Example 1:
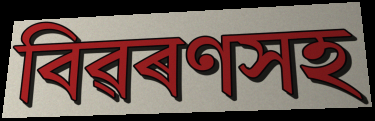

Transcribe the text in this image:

বিৱৰণসহ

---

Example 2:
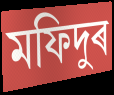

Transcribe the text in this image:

মফিদুৰ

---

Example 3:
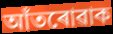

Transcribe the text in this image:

আঁতৰোৱাক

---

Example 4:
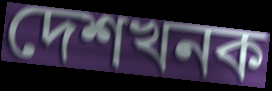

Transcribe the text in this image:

দেশখনক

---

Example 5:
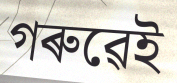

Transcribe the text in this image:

গৰুৱেই